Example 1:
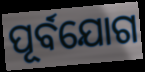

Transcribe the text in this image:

ପୂର୍ବଯୋଗ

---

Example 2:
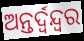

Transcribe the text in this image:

ଅନ୍ତର୍ଦ୍ୱନ୍ଦ୍ୱର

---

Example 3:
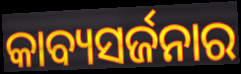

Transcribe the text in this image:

କାବ୍ୟସର୍ଜନାର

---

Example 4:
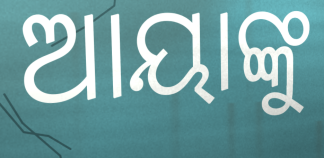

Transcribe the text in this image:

ଆୟାଙ୍କୁ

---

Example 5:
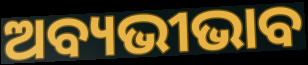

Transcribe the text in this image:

ଅବ୍ୟଭୀଭାବ